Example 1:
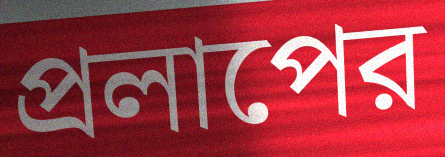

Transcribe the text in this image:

প্রলাপের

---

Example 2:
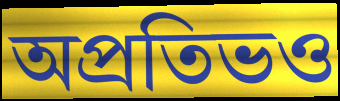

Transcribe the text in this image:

অপ্রতিভও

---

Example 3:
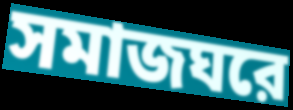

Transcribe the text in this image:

সমাজঘরে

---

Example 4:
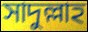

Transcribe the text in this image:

সাদুল্লাহ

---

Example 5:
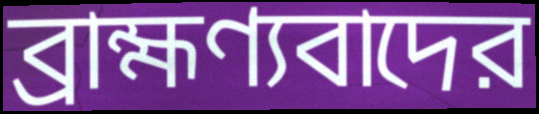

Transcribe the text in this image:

ব্রাহ্মণ্যবাদের